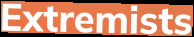
Extremists